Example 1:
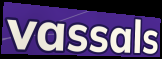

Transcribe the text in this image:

vassals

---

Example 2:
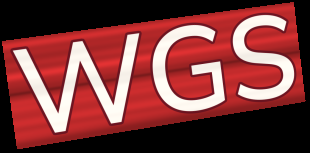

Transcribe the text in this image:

WGS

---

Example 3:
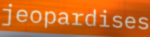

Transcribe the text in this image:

jeopardises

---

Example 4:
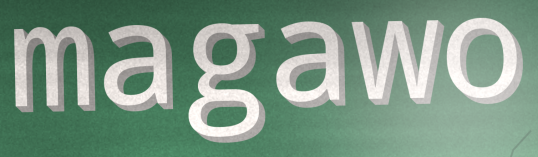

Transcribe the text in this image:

magawo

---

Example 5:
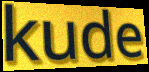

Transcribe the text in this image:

kude